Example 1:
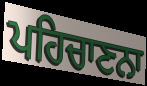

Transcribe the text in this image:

ਪਹਿਚਾਣਨਾ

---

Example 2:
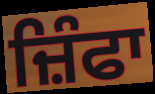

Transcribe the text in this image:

ਜ਼ਿੰਫਾ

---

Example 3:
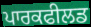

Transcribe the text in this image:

ਪਾਰਕਫੀਲਡ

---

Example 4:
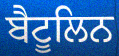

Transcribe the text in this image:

ਬੈਟੂਲਿਨ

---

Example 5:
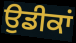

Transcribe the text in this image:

ਉਡੀਕਾਂ